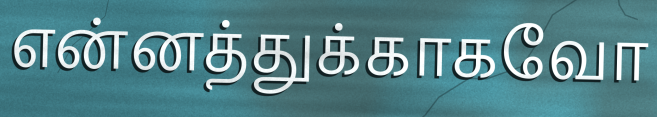
என்னத்துக்காகவோ